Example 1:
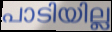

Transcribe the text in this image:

പാടിയില്ല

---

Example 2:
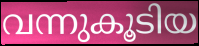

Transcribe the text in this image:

വന്നുകൂടിയ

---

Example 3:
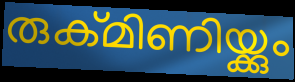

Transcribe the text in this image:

രുക്മിണിയ്ക്കും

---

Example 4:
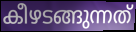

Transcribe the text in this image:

കീഴടങ്ങുന്നത്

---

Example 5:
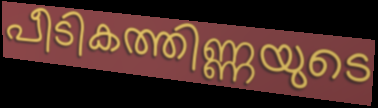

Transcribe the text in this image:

പീടികത്തിണ്ണയുടെ